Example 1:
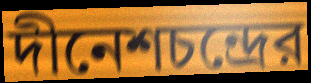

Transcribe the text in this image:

দীনেশচন্দ্রের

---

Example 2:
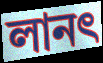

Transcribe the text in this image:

লানৎ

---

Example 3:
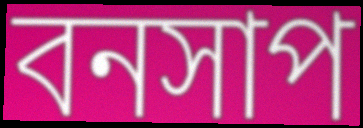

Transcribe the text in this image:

বনসাপ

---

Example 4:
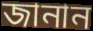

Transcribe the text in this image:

জানান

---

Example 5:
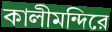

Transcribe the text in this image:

কালীমন্দিরে